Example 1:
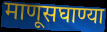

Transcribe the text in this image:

माणूसघाण्या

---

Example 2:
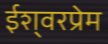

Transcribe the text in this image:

ईश्वरप्रेम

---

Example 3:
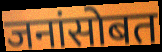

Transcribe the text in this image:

जनांसोबत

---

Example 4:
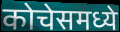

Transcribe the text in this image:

कोचेसमध्ये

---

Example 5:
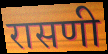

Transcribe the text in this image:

रासणी